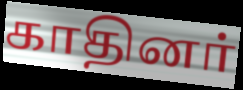
காதினர்